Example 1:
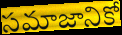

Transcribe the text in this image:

సమాజానికో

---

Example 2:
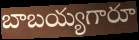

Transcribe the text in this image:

బాబయ్యగారూ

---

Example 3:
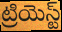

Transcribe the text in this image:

ట్రియెస్ట్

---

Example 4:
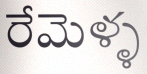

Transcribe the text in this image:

రేమెళ్ళ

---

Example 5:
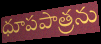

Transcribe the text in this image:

ధూపపాత్రను